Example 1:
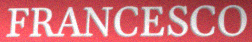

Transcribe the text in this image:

FRANCESCO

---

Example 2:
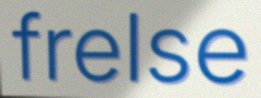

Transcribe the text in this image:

frelse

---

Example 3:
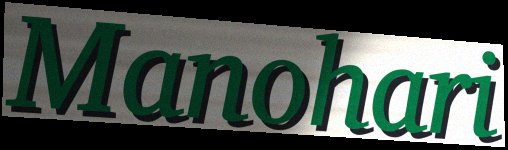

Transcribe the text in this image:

Manohari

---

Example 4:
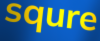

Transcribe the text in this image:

squre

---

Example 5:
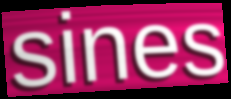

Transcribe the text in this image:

sines